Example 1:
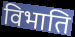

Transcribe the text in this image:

विभाति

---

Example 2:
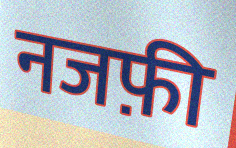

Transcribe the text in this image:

नजफ़ी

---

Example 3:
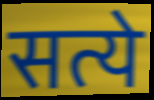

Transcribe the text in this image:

सत्ये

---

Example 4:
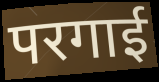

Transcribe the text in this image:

परगाई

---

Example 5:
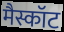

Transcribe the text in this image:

मैस्कॉट